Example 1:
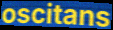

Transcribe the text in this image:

oscitans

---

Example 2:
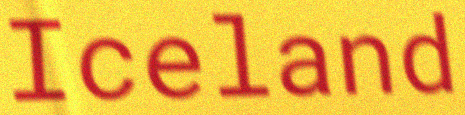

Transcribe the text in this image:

Iceland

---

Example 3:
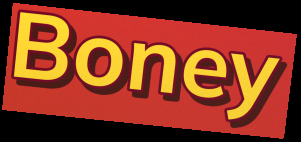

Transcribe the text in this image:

Boney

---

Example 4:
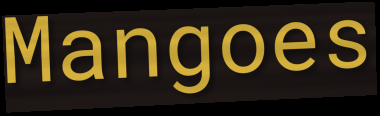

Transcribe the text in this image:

Mangoes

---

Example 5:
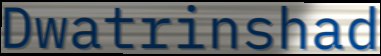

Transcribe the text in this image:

Dwatrinshad